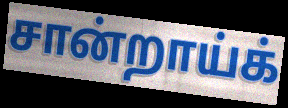
சான்றாய்க்